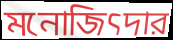
মনোজিৎদার